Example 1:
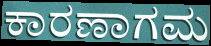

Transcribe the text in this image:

ಕಾರಣಾಗಮ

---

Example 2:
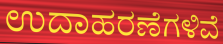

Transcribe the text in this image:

ಉದಾಹರಣೆಗಳಿವೆ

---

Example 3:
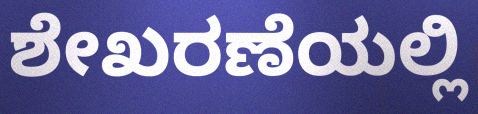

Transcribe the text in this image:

ಶೇಖರಣೆಯಲ್ಲಿ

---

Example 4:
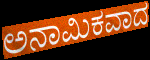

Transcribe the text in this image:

ಅನಾಮಿಕವಾದ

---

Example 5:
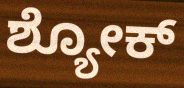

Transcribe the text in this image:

ಶ್ಯೋಕ್